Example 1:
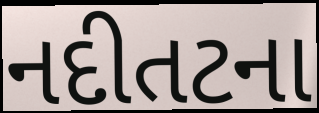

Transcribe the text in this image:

નદીતટના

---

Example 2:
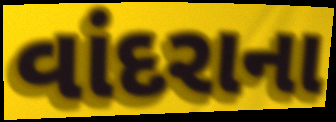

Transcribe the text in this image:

વાંદરાના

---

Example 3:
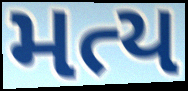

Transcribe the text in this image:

મત્ય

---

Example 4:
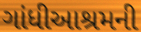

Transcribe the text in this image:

ગાંધીઆશ્રમની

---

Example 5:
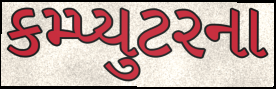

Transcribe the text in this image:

કમ્પ્યુટરના